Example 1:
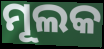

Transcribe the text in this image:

ମୂଲକ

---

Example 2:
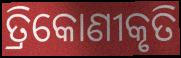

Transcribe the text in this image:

ତ୍ରିକୋଣୀକୃତି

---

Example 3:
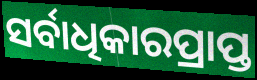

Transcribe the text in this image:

ସର୍ବାଧିକାରପ୍ରାପ୍ତ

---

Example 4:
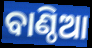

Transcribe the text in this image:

ବାଣ୍ଠିଆ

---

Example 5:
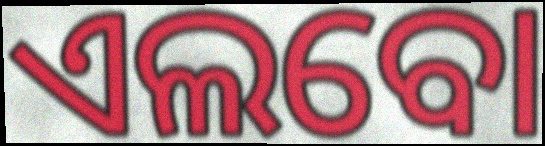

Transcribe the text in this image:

ଏଲବୋ